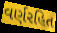
વર્ણરહિત